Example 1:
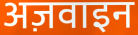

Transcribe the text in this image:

अज़वाइन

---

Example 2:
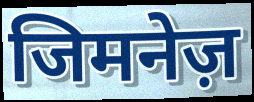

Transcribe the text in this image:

जिमनेज़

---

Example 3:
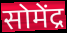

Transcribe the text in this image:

सोमेंद्र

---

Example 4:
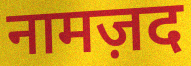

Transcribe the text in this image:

नामज़द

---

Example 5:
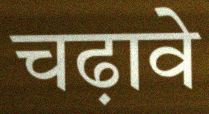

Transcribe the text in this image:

चढ़ावे